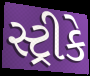
સ્ટ્રીકે